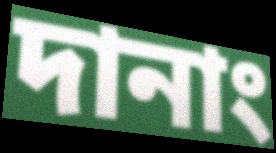
দানাং